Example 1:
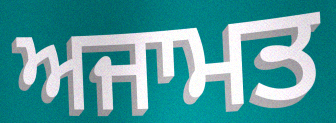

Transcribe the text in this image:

ਅਜਾਮਤ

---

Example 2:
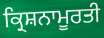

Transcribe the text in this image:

ਕ੍ਰਿਸ਼ਨਾਮੂਰਤੀ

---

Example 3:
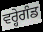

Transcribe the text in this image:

ਵਰ੍ਹੇਗੰਡ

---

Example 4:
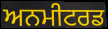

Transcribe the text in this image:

ਅਨਮੀਟਰਡ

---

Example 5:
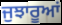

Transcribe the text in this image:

ਜੁਝਾਰੂਆਂ